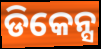
ଡିକେନ୍ସ